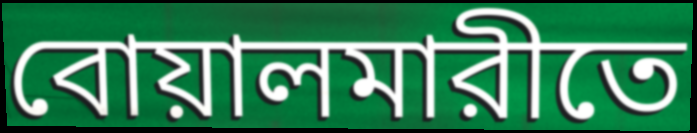
বোয়ালমারীতে